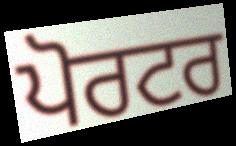
ਪੋਰਟਰ